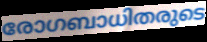
രോഗബാധിതരുടെ